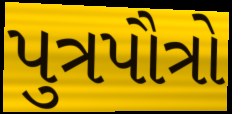
પુત્રપૌત્રો